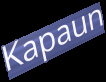
Kapaun